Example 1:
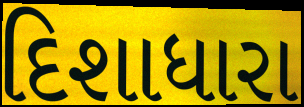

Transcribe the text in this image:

દિશાધારા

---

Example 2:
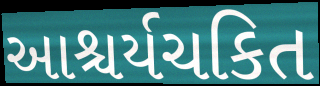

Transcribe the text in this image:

આશ્ચર્યચકિત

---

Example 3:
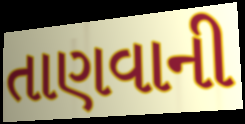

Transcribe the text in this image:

તાણવાની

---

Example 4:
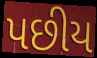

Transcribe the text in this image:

પછીય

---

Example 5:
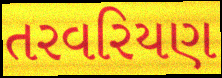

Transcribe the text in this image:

તરવરિયણ